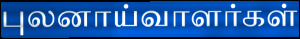
புலனாய்வாளர்கள்